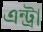
এন্ট্রা